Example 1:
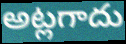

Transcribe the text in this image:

అట్లగాదు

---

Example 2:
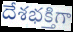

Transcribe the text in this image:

దేశభక్తిగా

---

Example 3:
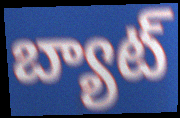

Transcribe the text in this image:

బ్యాట్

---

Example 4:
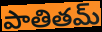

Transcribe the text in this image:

పాతితమ్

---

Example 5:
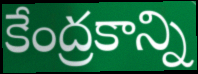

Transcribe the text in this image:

కేంద్రకాన్ని